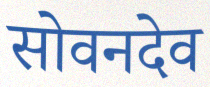
सोवनदेव